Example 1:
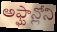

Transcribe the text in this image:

అఫ్ఘాన్లోని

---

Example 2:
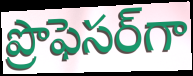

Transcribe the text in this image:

ప్రొఫెసర్‌గా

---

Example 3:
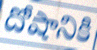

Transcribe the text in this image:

దోషానికి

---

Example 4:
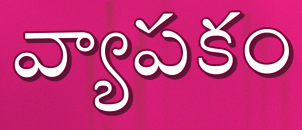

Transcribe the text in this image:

వ్యాపకం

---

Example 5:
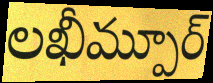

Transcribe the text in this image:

లఖీమ్పూర్